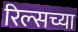
रिल्सच्या